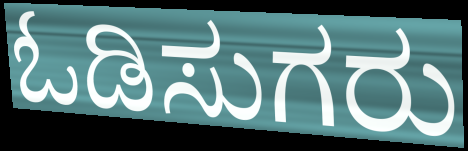
ಓಡಿಸುಗರು